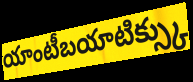
యాంటీబయాటిక్స్కు